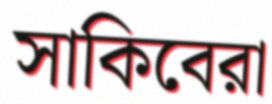
সাকিবেরা